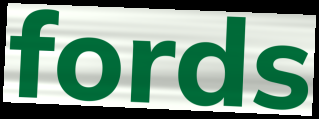
fords